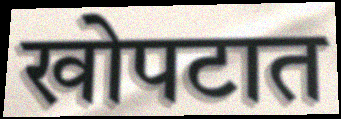
खोपटात